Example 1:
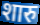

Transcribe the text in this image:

शारु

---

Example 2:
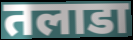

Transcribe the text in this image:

तलाडा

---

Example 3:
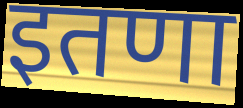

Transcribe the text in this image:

इतणा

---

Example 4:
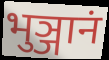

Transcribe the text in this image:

भुञ्जानं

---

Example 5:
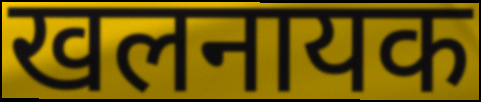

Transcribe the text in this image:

खलनायक